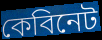
কেবিনেট